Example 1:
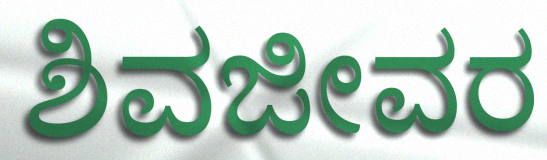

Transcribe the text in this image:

ಶಿವಜೀವರ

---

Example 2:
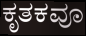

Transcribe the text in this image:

ಕೃತಕವೂ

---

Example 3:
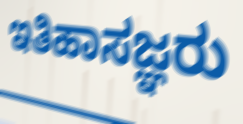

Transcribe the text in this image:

ಇತಿಹಾಸಜ್ಞರು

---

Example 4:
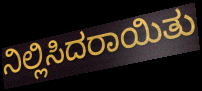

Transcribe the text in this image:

ನಿಲ್ಲಿಸಿದರಾಯಿತು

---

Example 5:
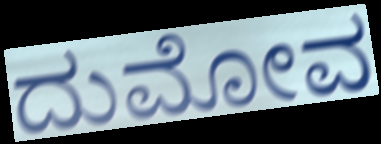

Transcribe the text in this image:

ದುಮೋವ